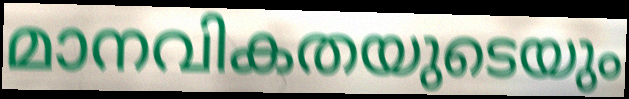
മാനവികതയുടെയും